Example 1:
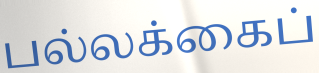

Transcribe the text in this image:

பல்லக்கைப்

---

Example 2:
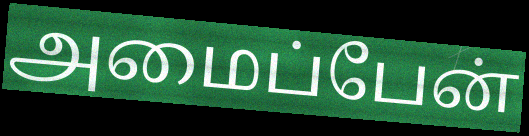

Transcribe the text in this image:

அமைப்பேன்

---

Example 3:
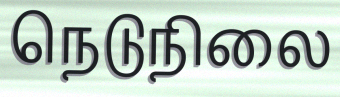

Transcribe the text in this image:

நெடுநிலை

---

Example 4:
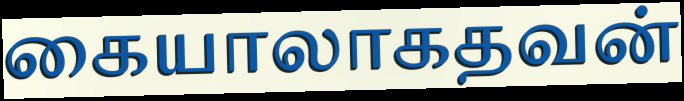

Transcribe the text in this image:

கையாலாகதவன்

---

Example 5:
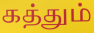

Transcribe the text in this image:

கத்தும்